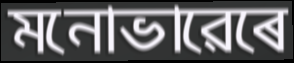
মনোভাৱেৰে